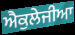
ਐਕੁਲੇਜੀਆ